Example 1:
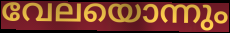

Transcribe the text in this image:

വേലയൊന്നും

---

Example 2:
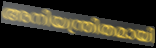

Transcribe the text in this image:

അനിയന്ത്രിതമായി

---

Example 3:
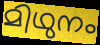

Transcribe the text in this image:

മിഥുനം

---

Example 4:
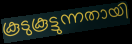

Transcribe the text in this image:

കൂടുകൂട്ടുന്നതായി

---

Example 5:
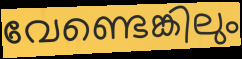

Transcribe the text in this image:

വേണ്ടെങ്കിലും